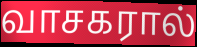
வாசகரால்